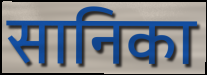
सानिका